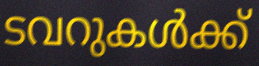
ടവറുകൾക്ക്